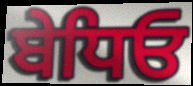
ਬੇਧਿਓ